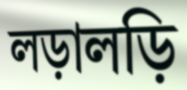
লড়ালড়ি